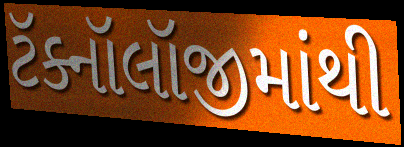
ટૅક્નૉલૉજીમાંથી